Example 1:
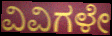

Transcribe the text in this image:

ವಿವಿಗಳೇ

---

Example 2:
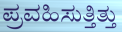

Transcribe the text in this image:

ಪ್ರವಹಿಸುತ್ತಿತ್ತು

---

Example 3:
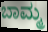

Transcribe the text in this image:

ಬಾಮ್ಮ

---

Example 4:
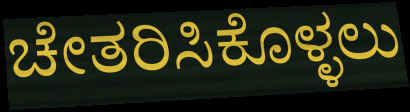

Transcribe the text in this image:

ಚೇತರಿಸಿಕೊಳ್ಳಲು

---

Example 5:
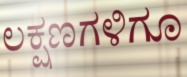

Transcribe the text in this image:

ಲಕ್ಷಣಗಳಿಗೂ